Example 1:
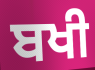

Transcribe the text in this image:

ਬਖੀ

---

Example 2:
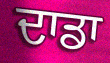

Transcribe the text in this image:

ਦਾਡਾ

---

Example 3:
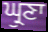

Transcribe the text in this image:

ਘ੍ਰੁਣਾ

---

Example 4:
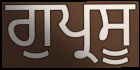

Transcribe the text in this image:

ਗੁਪ੍ਰਸੂ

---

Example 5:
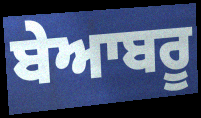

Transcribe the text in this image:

ਬੇਆਬਰੂ